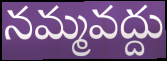
నమ్మవద్దు